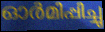
ഓർമിപ്പിച്ചു